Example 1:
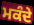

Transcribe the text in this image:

ਮਕੰਦੇ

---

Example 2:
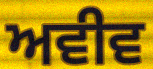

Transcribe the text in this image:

ਅਵੀਵ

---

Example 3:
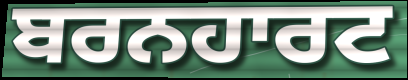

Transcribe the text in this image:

ਬਰਨਹਾਰਟ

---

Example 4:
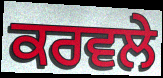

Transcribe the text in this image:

ਕਰਵਲੇ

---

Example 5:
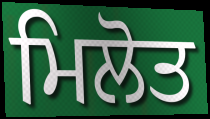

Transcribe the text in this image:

ਮਿਲੋਤ